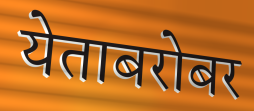
येताबरोबर